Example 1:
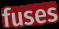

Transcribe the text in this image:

fuses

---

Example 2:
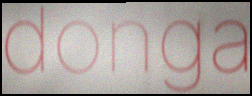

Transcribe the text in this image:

donga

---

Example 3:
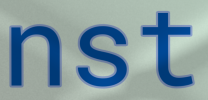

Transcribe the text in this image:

nst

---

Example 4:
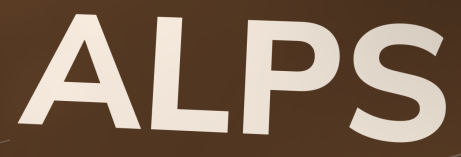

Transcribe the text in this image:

ALPS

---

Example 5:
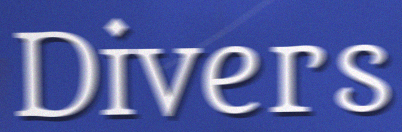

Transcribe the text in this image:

Divers